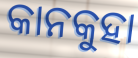
କାନକୁହା